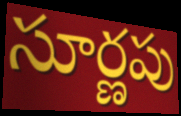
సూర్ణపు